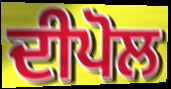
ਦੀਪੋਲ